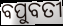
ବପୁବତୀ